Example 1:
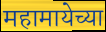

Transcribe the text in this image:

महामायेच्या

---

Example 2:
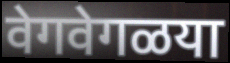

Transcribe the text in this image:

वेगवेगळया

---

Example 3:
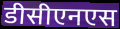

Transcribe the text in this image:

डीसीएनएस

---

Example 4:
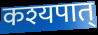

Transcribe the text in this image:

कश्यपात्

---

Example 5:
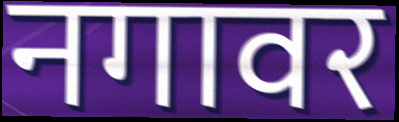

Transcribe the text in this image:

नगावर